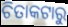
ଚିତାକଟାରୁ